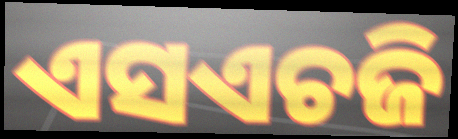
ଏସଏଚଜି